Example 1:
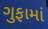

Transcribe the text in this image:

ગુફામાં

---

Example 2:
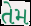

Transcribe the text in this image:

તેમ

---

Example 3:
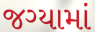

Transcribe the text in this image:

જગ્યામાં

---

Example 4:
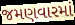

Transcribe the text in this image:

જમણવારમાં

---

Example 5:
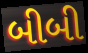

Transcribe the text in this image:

બીબી